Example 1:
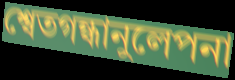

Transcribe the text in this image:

শ্বেতগন্ধানুলেপনা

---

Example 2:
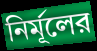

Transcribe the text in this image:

নির্মূলের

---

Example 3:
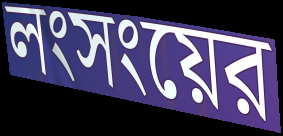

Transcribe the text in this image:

লংসংয়ের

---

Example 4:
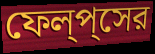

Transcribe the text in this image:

ফেল্‌প্‌সের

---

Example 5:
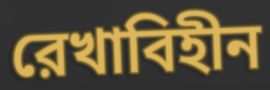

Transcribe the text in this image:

রেখাবিহীন